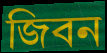
জিবন